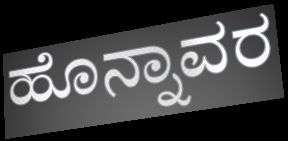
ಹೊನ್ನಾವರ